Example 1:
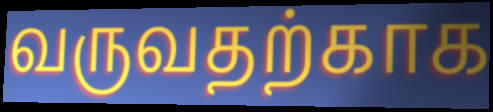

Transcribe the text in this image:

வருவதற்காக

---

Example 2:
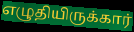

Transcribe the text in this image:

எழுதியிருக்கார்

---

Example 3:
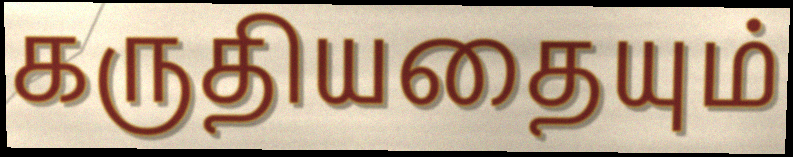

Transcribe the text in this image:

கருதியதையும்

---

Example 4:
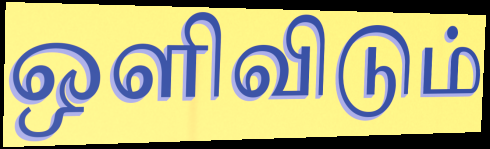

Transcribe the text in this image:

ஒளிவிடும்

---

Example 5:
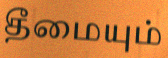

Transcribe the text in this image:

தீமையும்